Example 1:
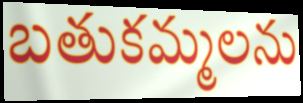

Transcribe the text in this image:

బతుకమ్మలను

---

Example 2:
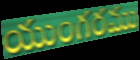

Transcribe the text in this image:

యుంగరము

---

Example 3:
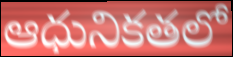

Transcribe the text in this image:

ఆధునికతలో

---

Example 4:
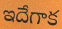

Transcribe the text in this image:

ఇదేగాక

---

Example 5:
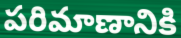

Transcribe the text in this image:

పరిమాణానికి